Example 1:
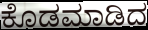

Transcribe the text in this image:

ಕೊಡಮಾಡಿದ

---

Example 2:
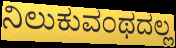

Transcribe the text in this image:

ನಿಲುಕುವಂಥದಲ್ಲ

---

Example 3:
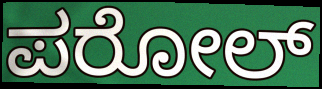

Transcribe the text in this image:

ಪರೋಲ್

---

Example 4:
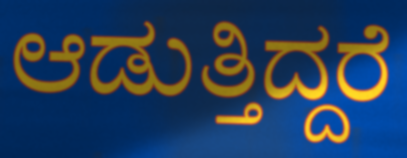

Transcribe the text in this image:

ಆಡುತ್ತಿದ್ದರೆ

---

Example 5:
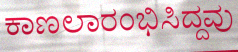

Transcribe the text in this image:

ಕಾಣಲಾರಂಭಿಸಿದ್ದವು